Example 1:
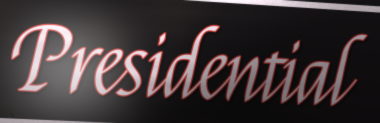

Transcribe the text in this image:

Presidential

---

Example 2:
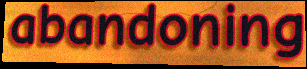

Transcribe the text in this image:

abandoning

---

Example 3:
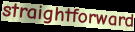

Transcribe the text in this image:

straightforward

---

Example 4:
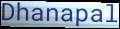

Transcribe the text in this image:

Dhanapal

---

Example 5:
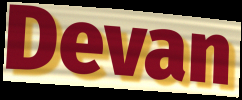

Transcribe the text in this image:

Devan